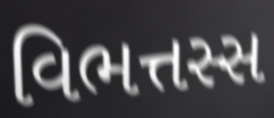
વિભત્તસ્સ